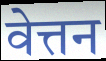
वेत्तन